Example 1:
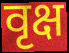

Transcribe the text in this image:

वृक्ष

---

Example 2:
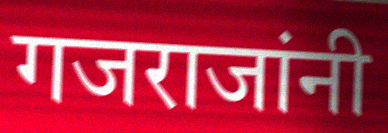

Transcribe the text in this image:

गजराजांनी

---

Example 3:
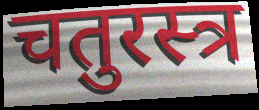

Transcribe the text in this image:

चतुरस्त्र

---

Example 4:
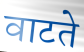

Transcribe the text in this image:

वाटते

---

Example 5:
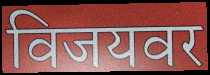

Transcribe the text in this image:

विजयवर